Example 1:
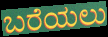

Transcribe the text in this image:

ಬರೆಯಲು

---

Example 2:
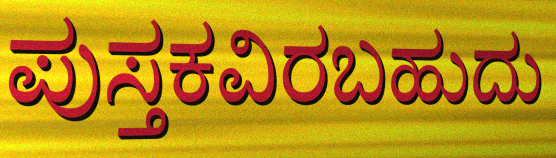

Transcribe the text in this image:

ಪುಸ್ತಕವಿರಬಹುದು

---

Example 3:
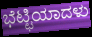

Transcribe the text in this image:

ಭೆಟ್ಟಿಯಾದಳು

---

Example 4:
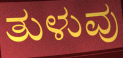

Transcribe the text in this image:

ತುಳುವು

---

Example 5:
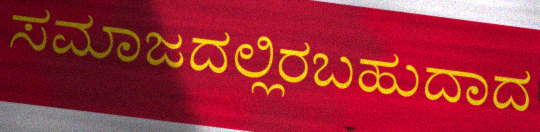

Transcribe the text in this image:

ಸಮಾಜದಲ್ಲಿರಬಹುದಾದ